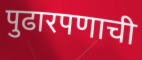
पुढारपणाची